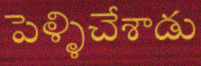
పెళ్ళిచేశాడు